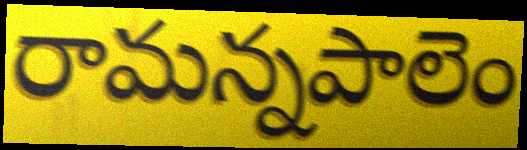
రామన్నపాలెం